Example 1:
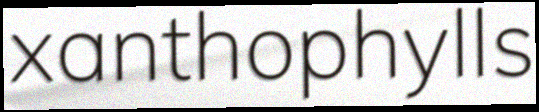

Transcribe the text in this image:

xanthophylls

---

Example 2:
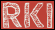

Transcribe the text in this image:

RKI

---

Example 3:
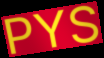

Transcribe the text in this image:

PYS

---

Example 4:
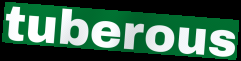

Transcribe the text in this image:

tuberous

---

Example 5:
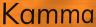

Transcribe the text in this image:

Kamma